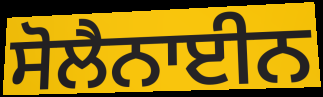
ਸੋਲੈਨਾਈਨ